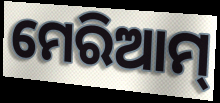
ମେରିଆମ୍